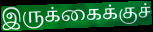
இருக்கைக்குச்